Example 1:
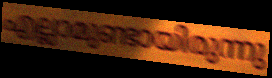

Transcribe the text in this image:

എല്ലാമുണ്ടായിരുന്നു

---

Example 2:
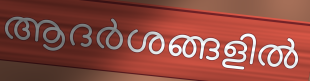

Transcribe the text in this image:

ആദർശങ്ങളിൽ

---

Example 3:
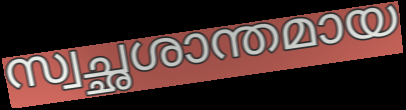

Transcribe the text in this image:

സ്വച്ഛശാന്തമായ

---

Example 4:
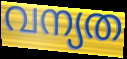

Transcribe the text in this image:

വന്യത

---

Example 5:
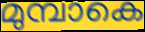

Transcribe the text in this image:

മുമ്പാകെ